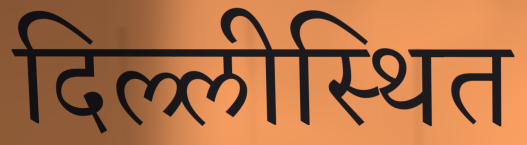
दिल्लीस्थित